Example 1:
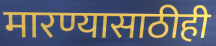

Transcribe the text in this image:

मारण्यासाठीही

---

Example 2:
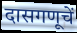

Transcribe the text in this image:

दासगणूचें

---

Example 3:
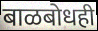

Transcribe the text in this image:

बाळबोधही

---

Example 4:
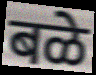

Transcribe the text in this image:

बळे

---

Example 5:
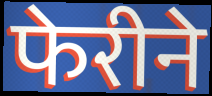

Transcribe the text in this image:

फेरीने